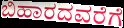
ಬಿಹಾರದವರೆಗೆ